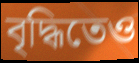
বৃদ্ধিতেও